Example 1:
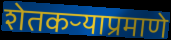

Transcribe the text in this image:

शेतकऱ्याप्रमाणे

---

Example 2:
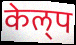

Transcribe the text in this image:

केल्प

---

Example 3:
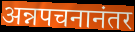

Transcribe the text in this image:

अन्नपचनानंतर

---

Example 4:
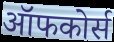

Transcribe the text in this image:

ऑफकोर्स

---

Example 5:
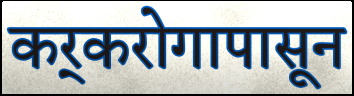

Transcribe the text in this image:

कर्करोगापासून